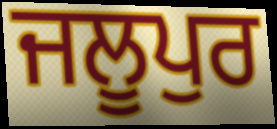
ਜਲੂਪੁਰ